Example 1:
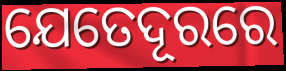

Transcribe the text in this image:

ଯେତେଦୂରରେ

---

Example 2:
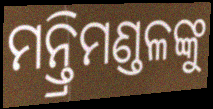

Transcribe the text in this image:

ମନ୍ତ୍ରିମଣ୍ଡଳଙ୍କୁ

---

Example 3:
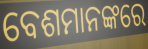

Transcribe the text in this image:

ବେଶମାନଙ୍କରେ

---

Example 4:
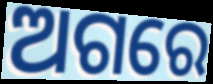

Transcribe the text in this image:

ଅଗରେ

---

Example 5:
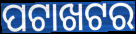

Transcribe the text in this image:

ପଟାଖଟର